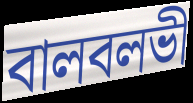
বালবলভী